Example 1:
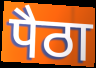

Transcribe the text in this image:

पैठा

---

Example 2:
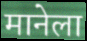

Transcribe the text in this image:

मानेला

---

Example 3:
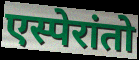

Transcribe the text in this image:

एस्पेरांतो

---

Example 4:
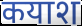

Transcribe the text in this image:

कयाश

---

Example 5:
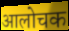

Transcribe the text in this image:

आलोचक